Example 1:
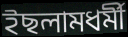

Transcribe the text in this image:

ইছলামধৰ্মী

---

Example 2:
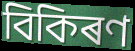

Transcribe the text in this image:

বিকিৰণ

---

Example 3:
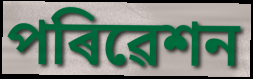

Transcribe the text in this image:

পৰিৱেশন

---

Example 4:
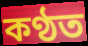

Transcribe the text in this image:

কণ্ঠত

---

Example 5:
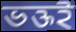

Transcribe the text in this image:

ভক্তই